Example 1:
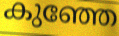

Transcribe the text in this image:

കുഞ്ഞേ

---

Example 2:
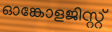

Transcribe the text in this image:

ഓങ്കോളജിസ്റ്റ്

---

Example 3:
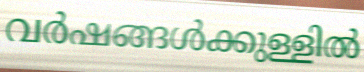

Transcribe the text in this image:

വർഷങ്ങൾക്കുള്ളിൽ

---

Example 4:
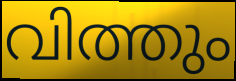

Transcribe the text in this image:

വിത്തും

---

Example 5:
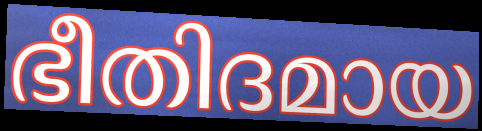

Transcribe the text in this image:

ഭീതിദമായ